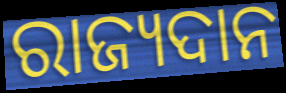
ରାଜ୍ୟଦାନ